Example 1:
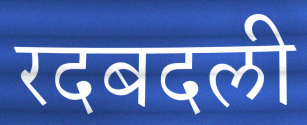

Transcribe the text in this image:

रदबदली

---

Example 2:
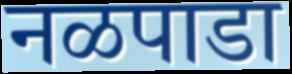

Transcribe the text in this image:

नळपाडा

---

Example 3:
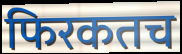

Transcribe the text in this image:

फिरकतच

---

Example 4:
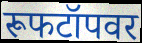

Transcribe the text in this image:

रूफटॉपवर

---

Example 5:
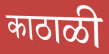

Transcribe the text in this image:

काठाळी